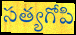
సత్యగోపి